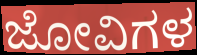
ಜೋವಿಗಳ